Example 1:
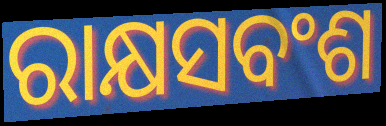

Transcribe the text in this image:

ରାକ୍ଷସବଂଶ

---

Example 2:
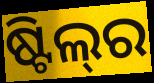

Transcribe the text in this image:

ଷ୍ଟିଲ୍‌ର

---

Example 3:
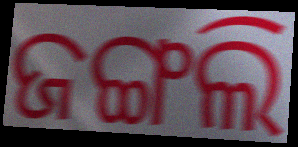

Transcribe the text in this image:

ଜଙ୍ଗଲି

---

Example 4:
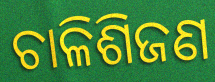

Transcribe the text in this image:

ଚାଳିଶିଜଣ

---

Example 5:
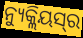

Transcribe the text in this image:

ନ୍ୟୁକ୍ଲିୟସ୍‌ର